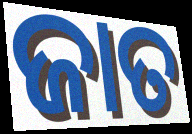
ଜାତ